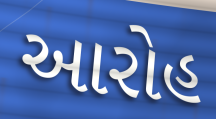
આરોહ